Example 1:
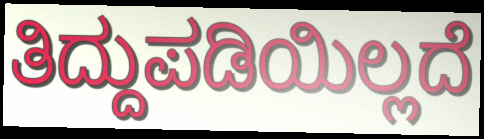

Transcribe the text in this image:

ತಿದ್ದುಪಡಿಯಿಲ್ಲದೆ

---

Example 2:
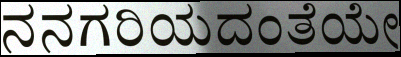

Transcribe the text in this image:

ನನಗರಿಯದಂತೆಯೇ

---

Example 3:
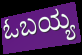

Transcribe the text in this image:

ಓಬಯ್ಯ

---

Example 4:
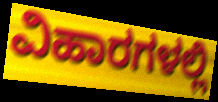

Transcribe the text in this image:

ವಿಹಾರಗಳಲ್ಲಿ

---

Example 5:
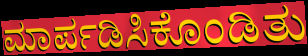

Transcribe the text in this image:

ಮಾರ್ಪಡಿಸಿಕೊಂಡಿತು